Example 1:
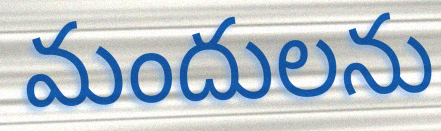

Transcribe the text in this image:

మందులను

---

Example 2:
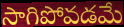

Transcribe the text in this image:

సాగిపోవడమే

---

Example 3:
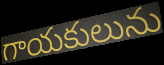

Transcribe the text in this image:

గాయకులును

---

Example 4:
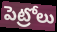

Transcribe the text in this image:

పెట్రోలు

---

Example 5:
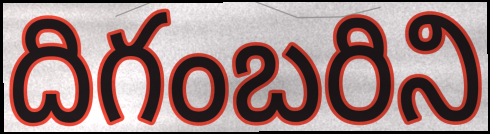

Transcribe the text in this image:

దిగంబరిని